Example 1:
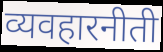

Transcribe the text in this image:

व्यवहारनीती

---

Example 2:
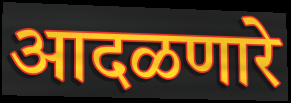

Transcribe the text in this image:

आदळणारे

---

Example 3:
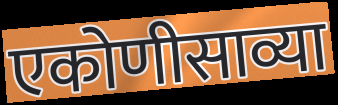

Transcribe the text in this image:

एकोणीसाव्या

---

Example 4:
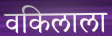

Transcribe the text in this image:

वकिलाला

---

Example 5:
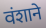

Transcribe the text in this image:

वंशाने